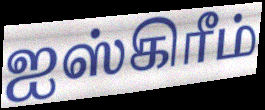
ஐஸ்கிரீம்